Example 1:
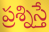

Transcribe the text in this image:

ప్రశ్నిస్తే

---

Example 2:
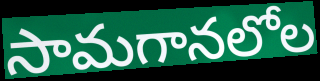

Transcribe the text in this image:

సామగానలోల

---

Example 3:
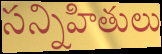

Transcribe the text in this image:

సన్నిహితులు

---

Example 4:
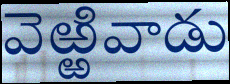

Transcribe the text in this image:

వెఱ్ఱివాడు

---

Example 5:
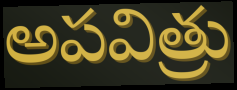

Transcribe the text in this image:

అపవిత్రు